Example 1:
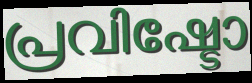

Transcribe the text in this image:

പ്രവിഷ്ടോ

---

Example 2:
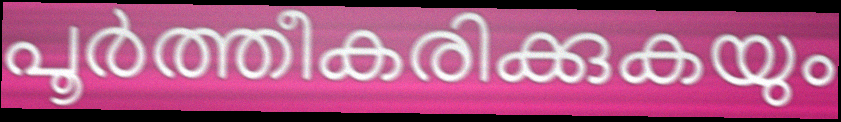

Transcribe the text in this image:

പൂർത്തീകരിക്കുകയും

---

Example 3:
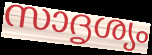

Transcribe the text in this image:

സാദൃശ്യം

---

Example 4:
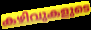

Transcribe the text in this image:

കഴിവുകളുടെ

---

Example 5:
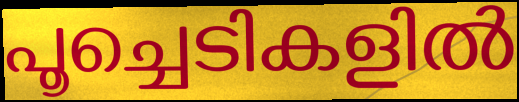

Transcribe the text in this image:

പൂച്ചെടികളിൽ